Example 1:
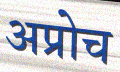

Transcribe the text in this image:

अप्रोच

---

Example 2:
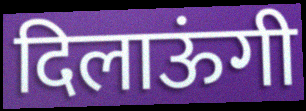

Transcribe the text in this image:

दिलाऊंगी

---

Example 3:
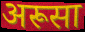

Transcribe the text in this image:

अरूसा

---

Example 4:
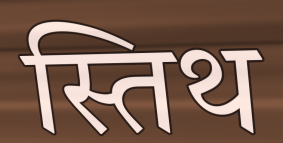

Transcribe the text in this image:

स्तिथ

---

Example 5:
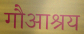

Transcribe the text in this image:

गौआश्रय